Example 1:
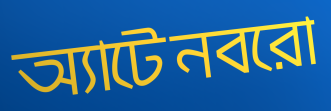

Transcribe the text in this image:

অ্যাটেনবরো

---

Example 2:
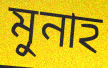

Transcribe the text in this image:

মুনাহ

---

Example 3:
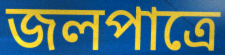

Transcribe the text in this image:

জলপাত্রে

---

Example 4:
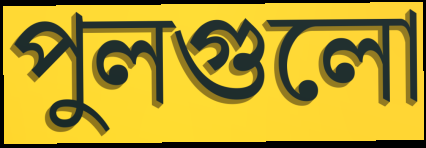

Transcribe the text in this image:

পুলগুলো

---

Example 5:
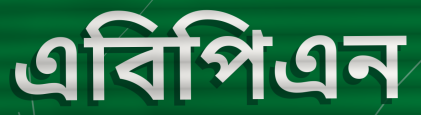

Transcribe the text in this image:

এবিপিএন